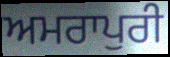
ਅਮਰਾਪੁਰੀ